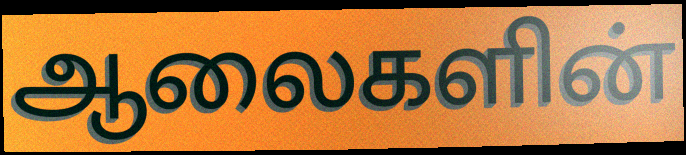
ஆலைகளின்